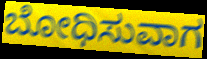
ಬೋಧಿಸುವಾಗ